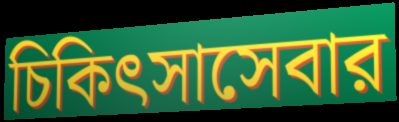
চিকিৎসাসেবার